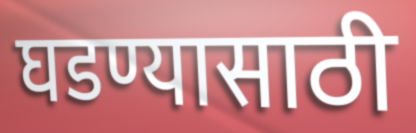
घडण्यासाठी